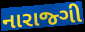
નારાજ્ગી